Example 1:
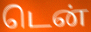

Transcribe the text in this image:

டென்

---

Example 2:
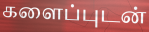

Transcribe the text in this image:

களைப்புடன்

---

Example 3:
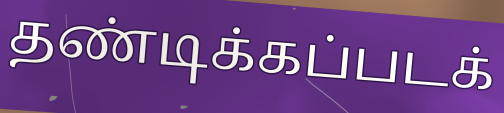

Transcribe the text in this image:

தண்டிக்கப்படக்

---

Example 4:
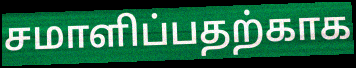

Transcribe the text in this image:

சமாளிப்பதற்காக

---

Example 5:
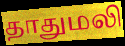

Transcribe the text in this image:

தாதுமலி